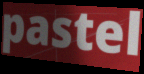
pastel